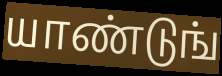
யாண்டுங்